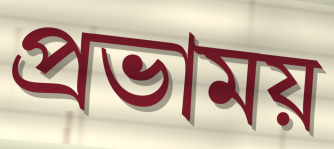
প্রভাময়